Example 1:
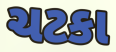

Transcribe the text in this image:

ચટકા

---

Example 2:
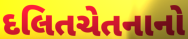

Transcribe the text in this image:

દલિતચેતનાનો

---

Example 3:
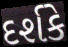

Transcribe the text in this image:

દર્શકે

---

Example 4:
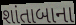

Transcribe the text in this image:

શાંતાબાના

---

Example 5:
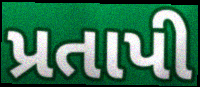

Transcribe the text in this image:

પ્રતાપી